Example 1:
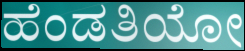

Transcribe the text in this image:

ಹೆಂಡತಿಯೋ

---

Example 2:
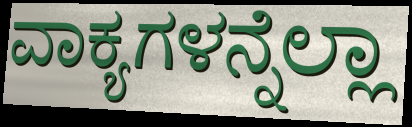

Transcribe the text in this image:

ವಾಕ್ಯಗಳನ್ನೆಲ್ಲಾ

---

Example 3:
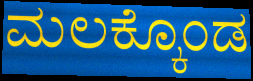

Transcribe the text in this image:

ಮಲಕ್ಕೊಂಡ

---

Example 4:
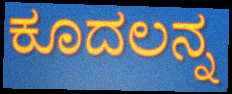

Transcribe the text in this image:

ಕೂದಲನ್ನ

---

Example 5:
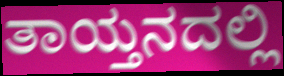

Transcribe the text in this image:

ತಾಯ್ತನದಲ್ಲಿ